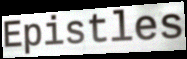
Epistles